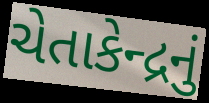
ચેતાકેન્દ્રનું